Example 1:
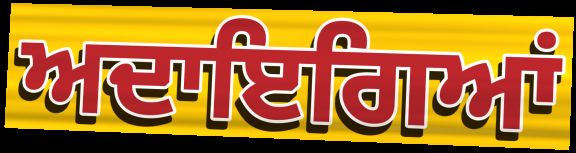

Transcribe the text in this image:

ਅਦਾਇਗਿਆਂ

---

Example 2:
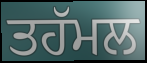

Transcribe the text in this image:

ਤਹੱਮਲ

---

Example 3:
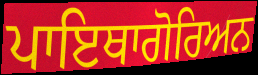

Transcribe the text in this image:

ਪਾਇਥਾਗੋਰਿਅਨ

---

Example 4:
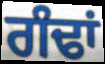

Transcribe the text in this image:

ਗੰਢਾਂ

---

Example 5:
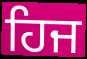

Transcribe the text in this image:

ਹਿਜ